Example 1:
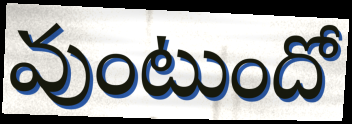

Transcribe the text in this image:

వుంటుందో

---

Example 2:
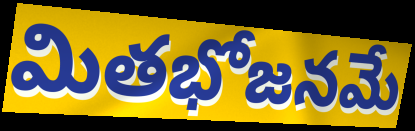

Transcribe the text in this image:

మితభోజనమే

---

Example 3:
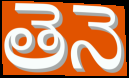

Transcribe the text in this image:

తెనె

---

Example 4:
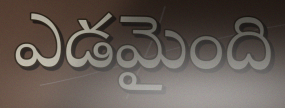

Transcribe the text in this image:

ఎడమైంది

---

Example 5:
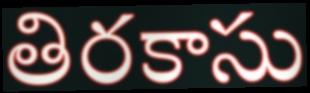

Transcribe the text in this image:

తిరకాసు